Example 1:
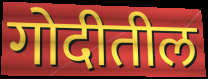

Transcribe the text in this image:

गोदीतील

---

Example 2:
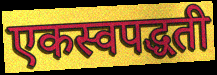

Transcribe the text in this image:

एकस्वपद्धती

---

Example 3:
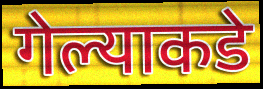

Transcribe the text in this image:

गेल्याकडे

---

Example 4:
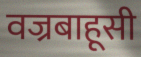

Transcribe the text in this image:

वज्रबाहूसी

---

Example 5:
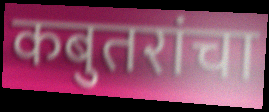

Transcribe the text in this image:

कबुतरांचा